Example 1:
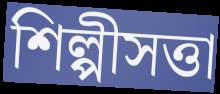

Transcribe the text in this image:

শিল্পীসত্তা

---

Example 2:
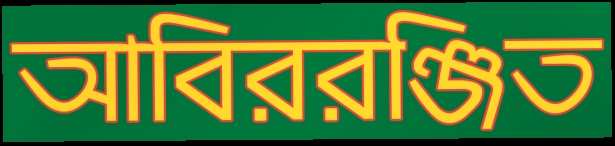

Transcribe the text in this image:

আবিররঞ্জিত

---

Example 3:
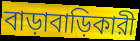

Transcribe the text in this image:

বাড়াবাড়িকারী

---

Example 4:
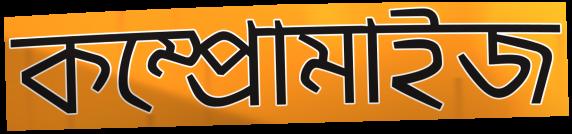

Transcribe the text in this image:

কম্প্রোমাইজ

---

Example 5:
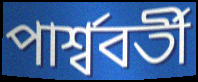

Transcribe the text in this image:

পার্শ্ববর্তী